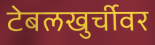
टेबलखुर्चीवर